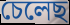
চেলেছ